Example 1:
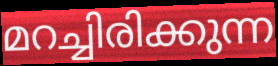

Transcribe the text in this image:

മറച്ചിരിക്കുന്ന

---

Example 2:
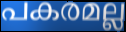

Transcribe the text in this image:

പകരമല്ല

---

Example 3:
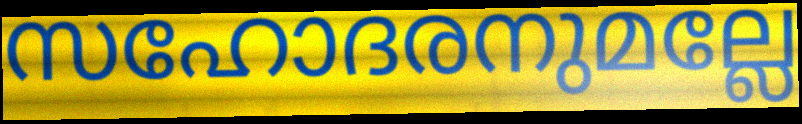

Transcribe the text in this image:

സഹോദരനുമല്ലേ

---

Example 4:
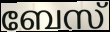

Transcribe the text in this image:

ബേസ്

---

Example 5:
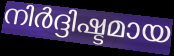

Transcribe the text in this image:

നിർദ്ദിഷ്ടമായ